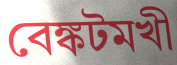
বেঙ্কটমখী